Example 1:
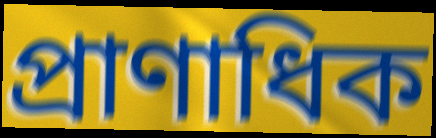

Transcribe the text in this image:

প্রাণাধিক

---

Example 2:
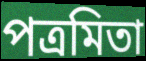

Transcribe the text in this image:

পত্রমিতা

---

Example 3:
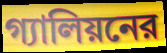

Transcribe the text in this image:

গ্যালিয়নের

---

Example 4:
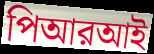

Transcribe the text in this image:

পিআরআই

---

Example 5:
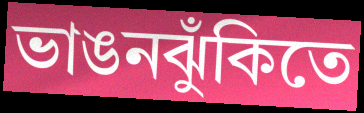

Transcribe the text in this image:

ভাঙনঝুঁকিতে